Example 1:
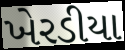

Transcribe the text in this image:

ખેરડીયા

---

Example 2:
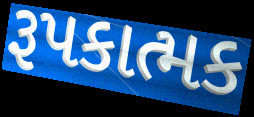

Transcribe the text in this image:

રૂપકાત્મક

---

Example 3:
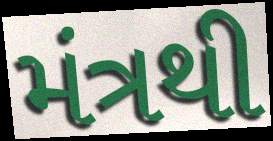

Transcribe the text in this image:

મંત્રથી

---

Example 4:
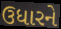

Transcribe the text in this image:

ઉધારને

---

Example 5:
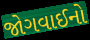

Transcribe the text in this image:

જોગવાઈનો